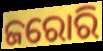
ଜରୋରି